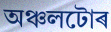
অঞ্চলটোৰ